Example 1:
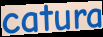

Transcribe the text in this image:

catura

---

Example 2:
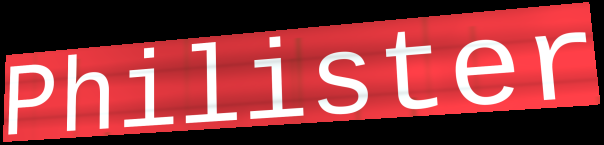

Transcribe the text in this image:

Philister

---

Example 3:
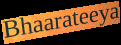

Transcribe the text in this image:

Bhaarateeya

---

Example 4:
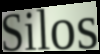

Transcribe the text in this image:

Silos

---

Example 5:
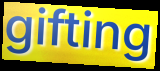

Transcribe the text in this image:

gifting